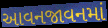
આવનજાવનમાં